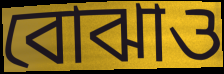
বোঝাও